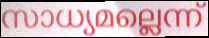
സാധ്യമല്ലെന്ന്